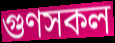
গুণসকল